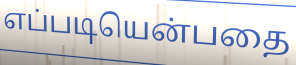
எப்படியென்பதை